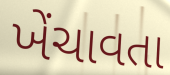
ખેંચાવતા